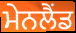
ਮੇਨਲੈਂਡ